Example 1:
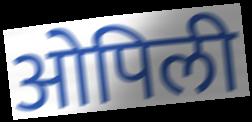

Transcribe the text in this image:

ओपिली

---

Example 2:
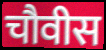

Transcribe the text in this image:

चौवीस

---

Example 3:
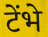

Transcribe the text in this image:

टेंभे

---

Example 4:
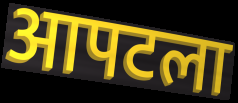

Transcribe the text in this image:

आपटला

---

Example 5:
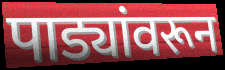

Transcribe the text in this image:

पाड्यांवरून